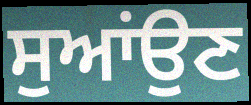
ਸੁਆਂਉਣ